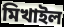
মিখাইল